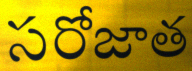
సరోజాత